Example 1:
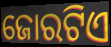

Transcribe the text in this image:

ଜୋରଟିଏ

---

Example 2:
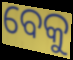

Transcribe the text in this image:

ବେକୁ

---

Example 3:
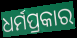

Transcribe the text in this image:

ଧର୍ମପ୍ରକାର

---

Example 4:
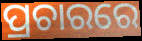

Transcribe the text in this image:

ପ୍ରଚାରରେ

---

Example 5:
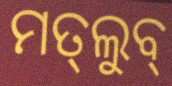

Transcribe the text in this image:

ମତ୍‌ଲୁବ୍